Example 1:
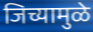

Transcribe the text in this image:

जिच्यामुळे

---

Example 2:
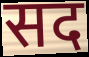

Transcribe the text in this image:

सद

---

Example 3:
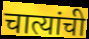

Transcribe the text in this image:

चात्यांची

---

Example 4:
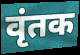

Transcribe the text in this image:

वृंतक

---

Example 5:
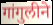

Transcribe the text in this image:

गांगुलीने